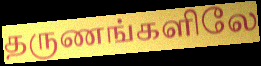
தருணங்களிலே